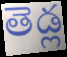
తెడ్ల